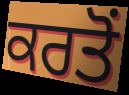
ਕਰਤੋਂ